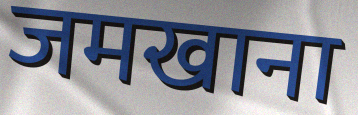
जमखाना